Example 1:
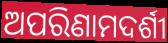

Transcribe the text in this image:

ଅପରିଣାମଦର୍ଶୀ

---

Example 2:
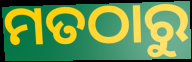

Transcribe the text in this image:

ମତଠାରୁ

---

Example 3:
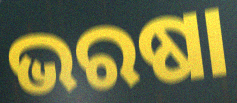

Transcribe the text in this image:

ଭରଷା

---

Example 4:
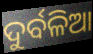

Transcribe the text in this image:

ଦୁର୍ବଳିଆ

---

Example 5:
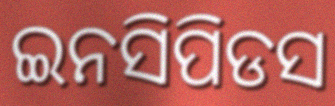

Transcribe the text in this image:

ଇନସିପିଡସ